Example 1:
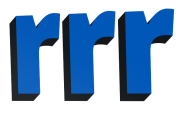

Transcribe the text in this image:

rrr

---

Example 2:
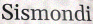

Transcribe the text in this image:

Sismondi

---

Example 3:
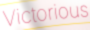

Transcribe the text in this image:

Victorious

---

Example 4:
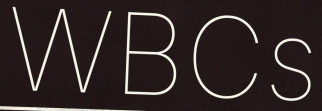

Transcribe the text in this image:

WBCs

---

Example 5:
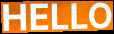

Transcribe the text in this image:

HELLO